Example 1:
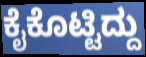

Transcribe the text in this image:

ಕೈಕೊಟ್ಟಿದ್ದು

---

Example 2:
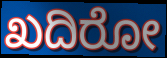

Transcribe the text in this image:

ಖದಿರೋ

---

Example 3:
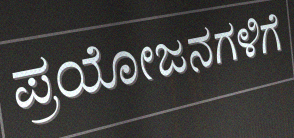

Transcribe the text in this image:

ಪ್ರಯೋಜನಗಳಿಗೆ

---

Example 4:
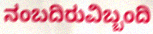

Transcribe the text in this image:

ನಂಬದಿರುವಿಬ್ಬಂದಿ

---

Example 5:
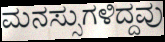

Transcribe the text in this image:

ಮನಸ್ಸುಗಳಿದ್ದವು